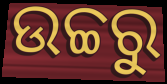
ଉଚ୍ଚରୁ